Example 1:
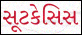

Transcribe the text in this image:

સૂટકેસિસ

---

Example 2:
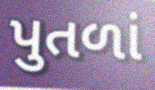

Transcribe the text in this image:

પુતળાં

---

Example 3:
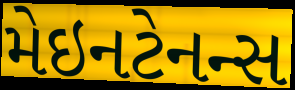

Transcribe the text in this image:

મેઇનટેનન્સ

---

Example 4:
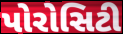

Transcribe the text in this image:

પોરોસિટી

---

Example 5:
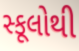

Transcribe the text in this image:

સ્કૂલોથી